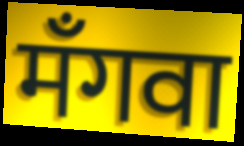
मँगवा